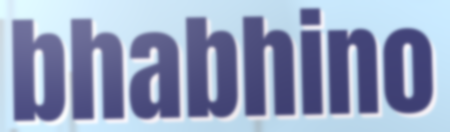
bhabhino